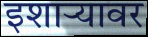
इशाऱ्यावर